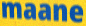
maane